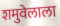
शमुवेलाला